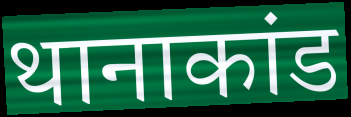
थानाकांड